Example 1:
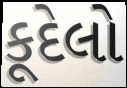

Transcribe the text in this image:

કૂદેલો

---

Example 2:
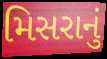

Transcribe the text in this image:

મિસરાનું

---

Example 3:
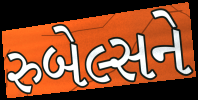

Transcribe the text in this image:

રુબેલ્સને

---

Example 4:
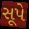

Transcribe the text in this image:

સૂપે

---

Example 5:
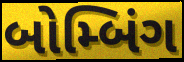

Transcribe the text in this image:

બોમ્બિંગ